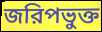
জরিপভুক্ত